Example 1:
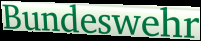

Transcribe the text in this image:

Bundeswehr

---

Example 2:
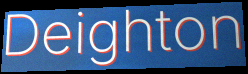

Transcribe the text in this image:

Deighton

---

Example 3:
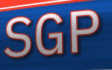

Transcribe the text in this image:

SGP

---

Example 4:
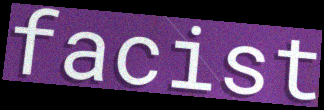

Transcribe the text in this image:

facist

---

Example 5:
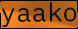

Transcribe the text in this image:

yaako